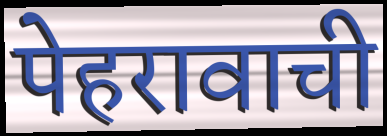
पेहरावाची